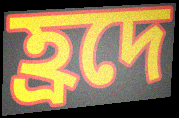
হ্রদে